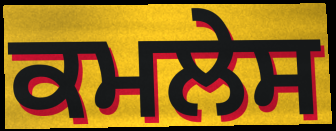
ਕਮਲੇਸ